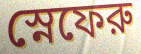
স্নেফেরু